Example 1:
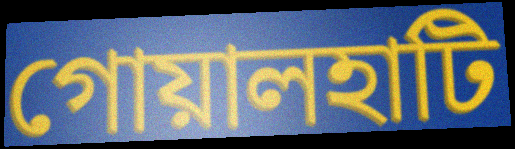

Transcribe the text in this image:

গোয়ালহাটি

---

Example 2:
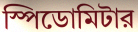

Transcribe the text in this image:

স্পিডোমিটার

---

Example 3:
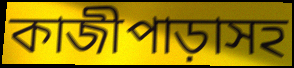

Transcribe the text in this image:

কাজীপাড়াসহ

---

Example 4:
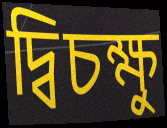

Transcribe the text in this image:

দ্বিচক্ষু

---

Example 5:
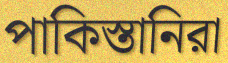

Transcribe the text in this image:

পাকিস্তানিরা